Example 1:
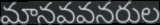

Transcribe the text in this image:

మానవవనరుల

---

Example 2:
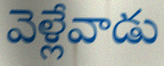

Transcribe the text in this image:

వెళ్లేవాడు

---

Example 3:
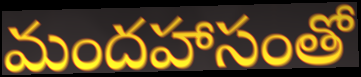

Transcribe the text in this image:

మందహాసంతో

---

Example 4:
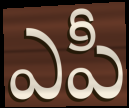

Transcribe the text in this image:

ఎపీ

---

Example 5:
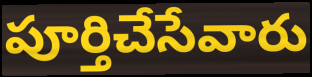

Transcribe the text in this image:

పూర్తిచేసేవారు